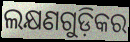
ଲକ୍ଷଣଗୁଡ଼ିକର